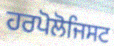
ਹਰਪੋਲੋਜਿਸਟ